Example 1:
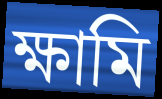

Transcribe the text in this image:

ক্ষামি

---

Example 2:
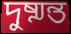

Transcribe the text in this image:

দুষ্মন্ত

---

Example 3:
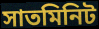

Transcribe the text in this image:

সাতমিনিট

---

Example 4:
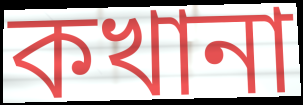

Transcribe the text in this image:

কখানা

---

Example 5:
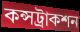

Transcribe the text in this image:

কন্সট্রাকশন